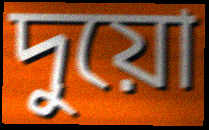
দুয়ো